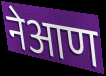
नेआण